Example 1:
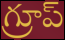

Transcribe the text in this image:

గ్రూప్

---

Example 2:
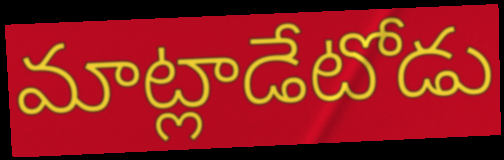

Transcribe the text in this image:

మాట్లాడేటోడు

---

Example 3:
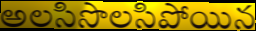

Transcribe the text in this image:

అలసిసొలసిపోయిన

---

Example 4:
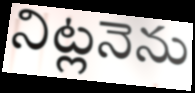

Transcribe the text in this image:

నిట్లనెను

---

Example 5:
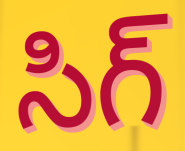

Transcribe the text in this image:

సిగ్